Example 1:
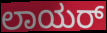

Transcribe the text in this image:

ಲಾಯರ್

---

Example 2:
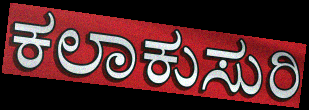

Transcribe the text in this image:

ಕಲಾಕುಸುರಿ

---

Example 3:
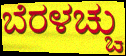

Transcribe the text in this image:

ಬೆರಳಚ್ಚು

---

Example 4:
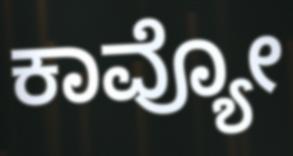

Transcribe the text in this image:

ಕಾವ್ಯೋ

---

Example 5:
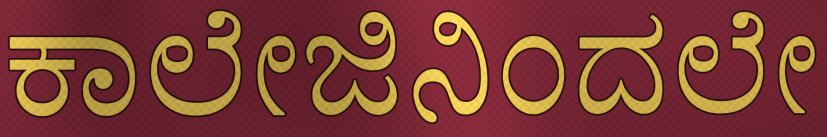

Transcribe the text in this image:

ಕಾಲೇಜಿನಿಂದಲೇ